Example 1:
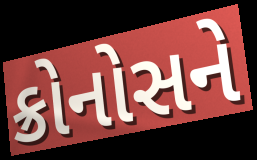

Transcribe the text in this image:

ક્રોનોસને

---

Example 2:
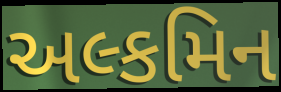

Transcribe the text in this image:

અલ્કમિન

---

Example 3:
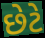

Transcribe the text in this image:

છેટે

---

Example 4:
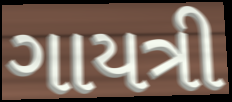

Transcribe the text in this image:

ગાયત્રી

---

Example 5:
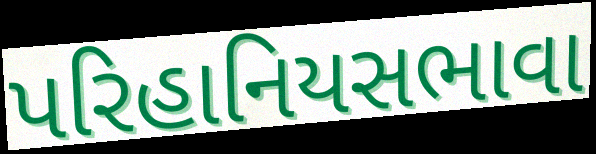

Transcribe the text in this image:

પરિહાનિયસભાવા